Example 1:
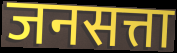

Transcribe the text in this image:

जनसत्ता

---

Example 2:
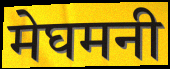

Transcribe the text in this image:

मेघमनी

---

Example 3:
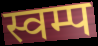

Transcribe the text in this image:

स्वम्प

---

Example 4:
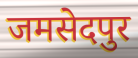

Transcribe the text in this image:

जमसेदपुर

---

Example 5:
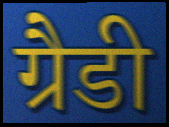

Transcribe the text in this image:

ग्रैडी